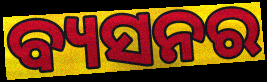
ବ୍ୟସନର